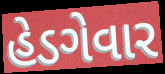
હેડગેવાર